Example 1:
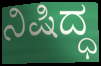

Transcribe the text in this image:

ನಿಷಿದ್ಧ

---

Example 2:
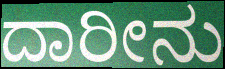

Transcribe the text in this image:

ದಾರೀನು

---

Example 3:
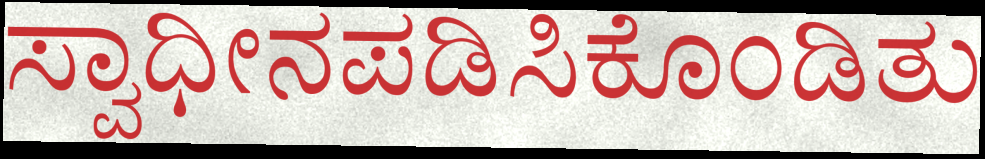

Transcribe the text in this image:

ಸ್ವಾಧೀನಪಡಿಸಿಕೊಂಡಿತು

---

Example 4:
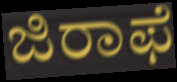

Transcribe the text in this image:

ಜಿರಾಫೆ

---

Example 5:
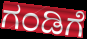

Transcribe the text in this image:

ಗಂಡಿಗೆ